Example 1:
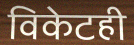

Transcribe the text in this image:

विकेटही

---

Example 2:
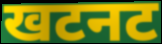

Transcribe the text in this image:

खटनट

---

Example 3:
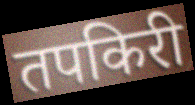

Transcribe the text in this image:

तपकिरी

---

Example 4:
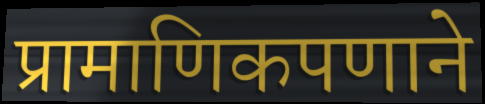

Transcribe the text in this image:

प्रामाणिकपणाने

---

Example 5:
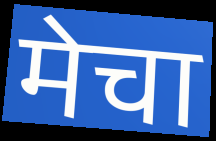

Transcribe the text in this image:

मेचा